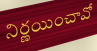
నిర్ణయించావో